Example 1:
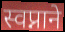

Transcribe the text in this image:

स्वप्नाने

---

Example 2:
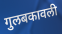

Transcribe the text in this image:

गुलबकावली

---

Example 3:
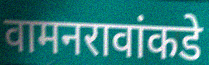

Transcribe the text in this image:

वामनरावांकडे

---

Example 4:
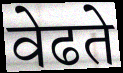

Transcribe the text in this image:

वेढते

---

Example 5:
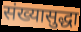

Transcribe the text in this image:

संख्यासुद्धा